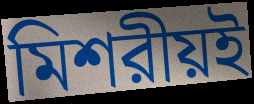
মিশরীয়ই